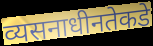
व्यसनाधीनतेकडे